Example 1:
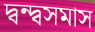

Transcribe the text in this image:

দ্বন্দ্বসমাস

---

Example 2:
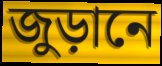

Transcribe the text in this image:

জুড়ানে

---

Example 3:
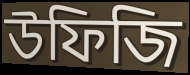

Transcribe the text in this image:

উফিজি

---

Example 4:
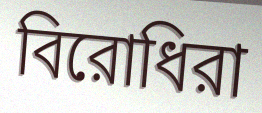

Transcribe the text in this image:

বিরোধিরা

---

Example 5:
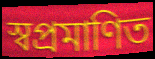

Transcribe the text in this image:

স্বপ্রমাণিত